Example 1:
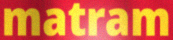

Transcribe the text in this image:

matram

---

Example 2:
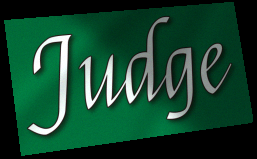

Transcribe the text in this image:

Judge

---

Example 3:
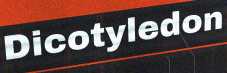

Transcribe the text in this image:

Dicotyledon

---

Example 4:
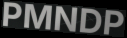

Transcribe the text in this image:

PMNDP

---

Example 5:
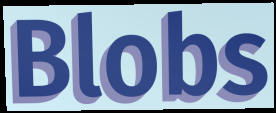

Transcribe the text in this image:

Blobs